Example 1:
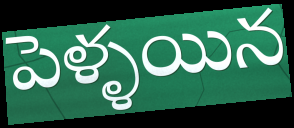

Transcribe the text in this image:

పెళ్ళయిన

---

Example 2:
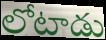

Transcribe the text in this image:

లోటాడు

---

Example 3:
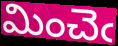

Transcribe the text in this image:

మించెఁ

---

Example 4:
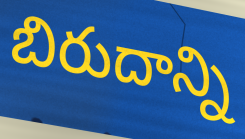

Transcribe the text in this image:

బిరుదాన్ని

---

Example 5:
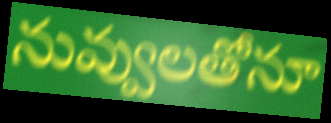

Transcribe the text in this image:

నువ్వులతోనూ